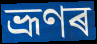
ভ্ৰূণৰ